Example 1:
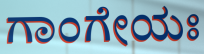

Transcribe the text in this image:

ಗಾಂಗೇಯಃ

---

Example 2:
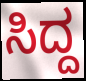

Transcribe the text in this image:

ಸಿದ್ದ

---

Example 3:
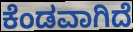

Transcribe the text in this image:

ಕೆಂಡವಾಗಿದೆ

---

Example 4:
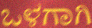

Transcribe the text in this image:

ಒಳಗಾಗಿ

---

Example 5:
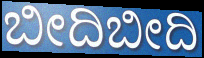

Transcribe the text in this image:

ಬೀದಿಬೀದಿ